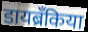
डायब्रँकिया